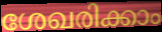
ശേഖരിക്കാം